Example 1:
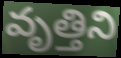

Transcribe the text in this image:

వృత్తిని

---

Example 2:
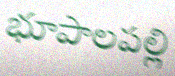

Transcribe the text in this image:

భూపాలపల్లి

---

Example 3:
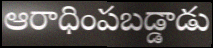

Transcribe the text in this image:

ఆరాధింపబడ్డాడు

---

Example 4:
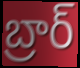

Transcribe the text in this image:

బ్రార్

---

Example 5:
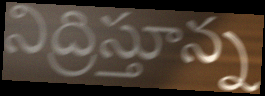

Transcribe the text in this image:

నిద్రిస్తూన్న